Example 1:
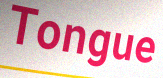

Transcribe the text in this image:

Tongue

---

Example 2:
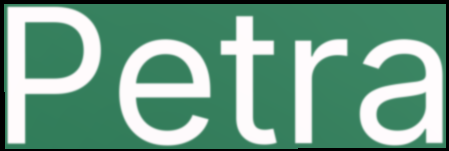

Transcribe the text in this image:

Petra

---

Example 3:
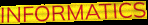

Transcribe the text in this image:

INFORMATICS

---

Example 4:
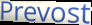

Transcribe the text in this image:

Prevost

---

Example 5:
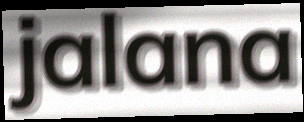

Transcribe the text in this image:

jalana